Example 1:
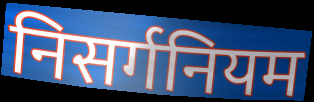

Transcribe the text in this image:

निसर्गनियम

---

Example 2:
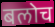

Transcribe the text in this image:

बलोच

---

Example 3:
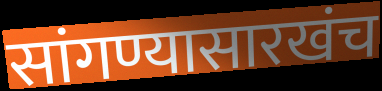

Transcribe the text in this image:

सांगण्यासारखंच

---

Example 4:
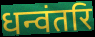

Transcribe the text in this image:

धन्वंतरि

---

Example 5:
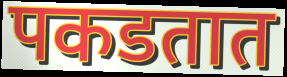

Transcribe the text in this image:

पकडतात